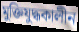
মুক্তিযুদ্ধকালীন